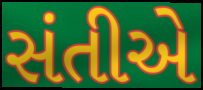
સંતીએ